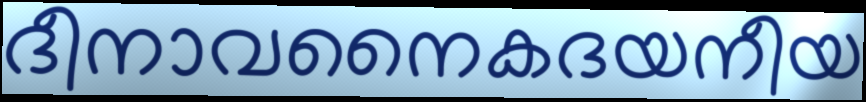
ദീനാവനൈകദയനീയ